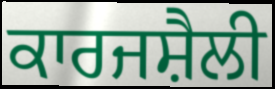
ਕਾਰਜਸ਼ੈਲੀ